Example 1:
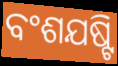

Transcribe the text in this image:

ବଂଶଯଷ୍ଟି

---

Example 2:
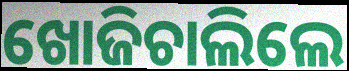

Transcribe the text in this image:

ଖୋଜିଚାଲିଲେ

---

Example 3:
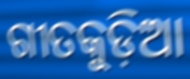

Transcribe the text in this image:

ଗୀତକୁଡ଼ିଆ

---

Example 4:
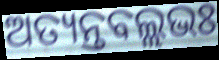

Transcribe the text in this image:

ଅତ୍ୟନ୍ତବଲ୍ଲଭଃ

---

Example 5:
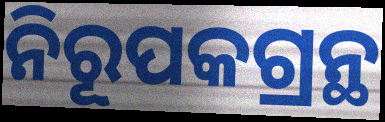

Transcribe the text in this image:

ନିରୂପକଗ୍ରନ୍ଥ